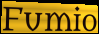
Fumio